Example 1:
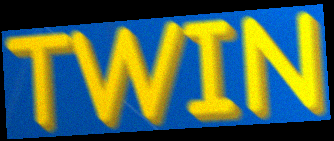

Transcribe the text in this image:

TWIN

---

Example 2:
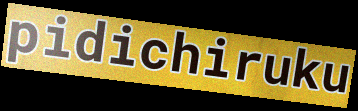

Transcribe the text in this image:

pidichiruku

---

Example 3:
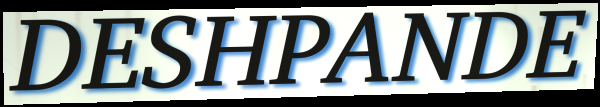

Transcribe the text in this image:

DESHPANDE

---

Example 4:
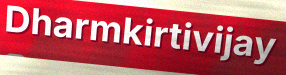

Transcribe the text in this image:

Dharmkirtivijay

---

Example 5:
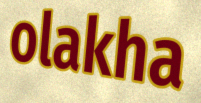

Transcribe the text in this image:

olakha